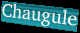
Chaugule